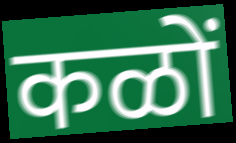
कळों